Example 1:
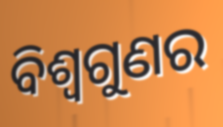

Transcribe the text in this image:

ବିଶ୍ୱଗୁଣର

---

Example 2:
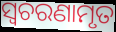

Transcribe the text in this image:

ସ୍ଵଚରଣାମୃତ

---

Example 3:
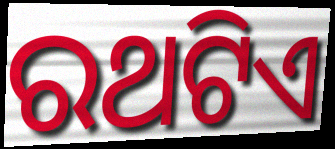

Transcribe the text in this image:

ରଥଟିଏ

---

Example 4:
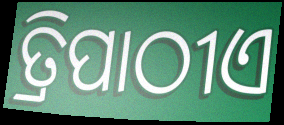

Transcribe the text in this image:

ତ୍ରିପାଠୀଏ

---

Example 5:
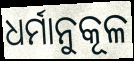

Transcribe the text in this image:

ଧର୍ମାନୁକୂଳ